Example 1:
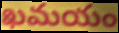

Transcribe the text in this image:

ఖమయం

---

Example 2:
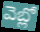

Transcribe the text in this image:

వెబ్లో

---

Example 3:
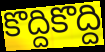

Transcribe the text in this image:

కొద్దికొద్ది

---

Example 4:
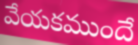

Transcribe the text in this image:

వేయకముందే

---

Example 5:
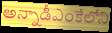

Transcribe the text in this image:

అన్నాడీఎంకేలోని